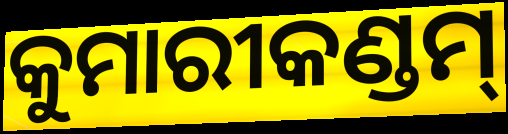
କୁମାରୀକଣ୍ଡମ୍